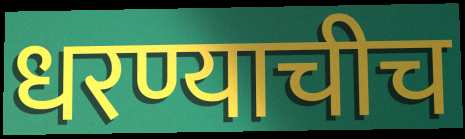
धरण्याचीच